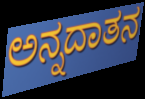
ಅನ್ನದಾತನ